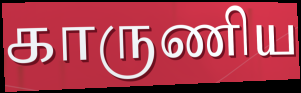
காருணிய